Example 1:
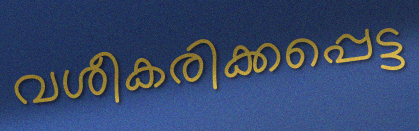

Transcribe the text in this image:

വശീകരിക്കപ്പെട്ട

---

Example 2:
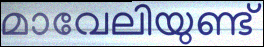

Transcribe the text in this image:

മാവേലിയുണ്ട്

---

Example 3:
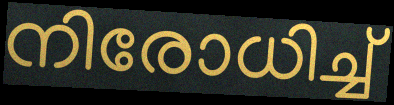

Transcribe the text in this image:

നിരോധിച്ച്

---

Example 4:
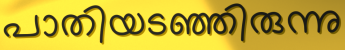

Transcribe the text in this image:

പാതിയടഞ്ഞിരുന്നു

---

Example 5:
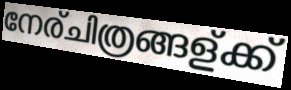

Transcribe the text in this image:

നേര്ചിത്രങ്ങള്ക്ക്